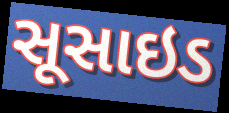
સૂસાઇડ